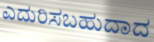
ಎದುರಿಸಬಹುದಾದ